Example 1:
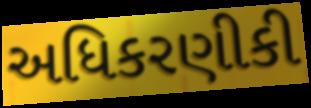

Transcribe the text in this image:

અધિકરણીકી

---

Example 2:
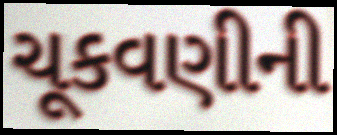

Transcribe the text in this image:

ચૂકવણીની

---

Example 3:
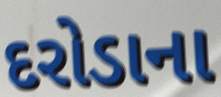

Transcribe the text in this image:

દરોડાના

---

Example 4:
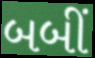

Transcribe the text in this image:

બબીં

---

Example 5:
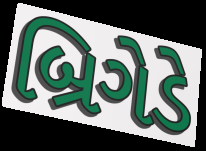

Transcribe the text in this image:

બ્રિગેડે